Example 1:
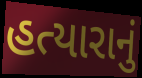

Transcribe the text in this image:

હત્યારાનું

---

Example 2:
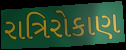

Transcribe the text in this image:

રાત્રિરોકાણ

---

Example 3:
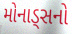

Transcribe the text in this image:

મોનાડ્સનો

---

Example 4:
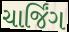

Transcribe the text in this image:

ચાર્જિંગ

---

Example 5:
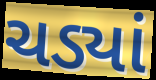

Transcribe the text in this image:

ચડ્યાં